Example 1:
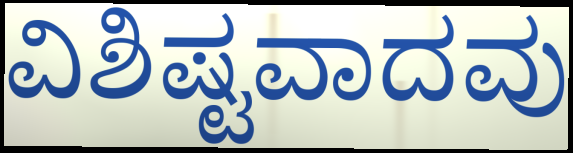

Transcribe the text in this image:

ವಿಶಿಷ್ಟವಾದವು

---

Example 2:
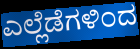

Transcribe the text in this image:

ಎಲ್ಲೆಡೆಗಳಿಂದ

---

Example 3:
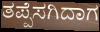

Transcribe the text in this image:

ತಪ್ಪೆಸಗಿದಾಗ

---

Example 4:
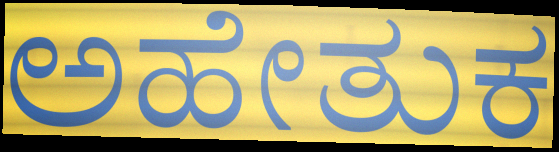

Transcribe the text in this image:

ಅಹೇತುಕ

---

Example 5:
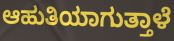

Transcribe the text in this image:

ಆಹುತಿಯಾಗುತ್ತಾಳೆ